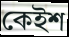
কেইশ